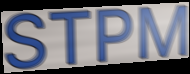
STPM